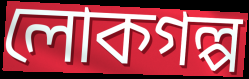
লোকগল্প